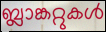
ബ്ലാങ്കറ്റുകൾ